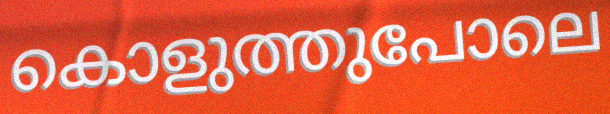
കൊളുത്തുപോലെ